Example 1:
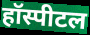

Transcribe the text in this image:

हॉस्पीटल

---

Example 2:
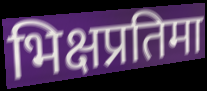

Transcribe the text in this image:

भिक्षप्रतिमा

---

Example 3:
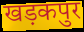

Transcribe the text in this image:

खड़कपुर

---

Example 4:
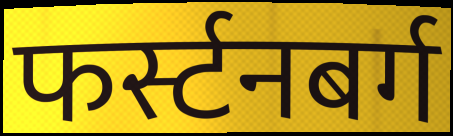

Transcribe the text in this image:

फर्स्टनबर्ग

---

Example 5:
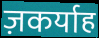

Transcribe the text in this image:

ज़कर्याह